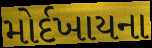
મોર્દખાયના